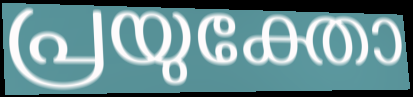
പ്രയുക്തോ